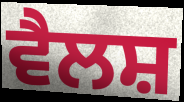
ਵੈਲਸ਼